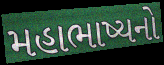
મહાભાષ્યનો